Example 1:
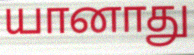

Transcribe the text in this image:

யானாது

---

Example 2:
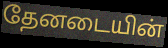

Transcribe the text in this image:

தேனடையின்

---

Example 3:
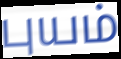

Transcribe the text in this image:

புயம்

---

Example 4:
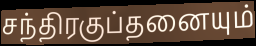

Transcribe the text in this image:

சந்திரகுப்தனையும்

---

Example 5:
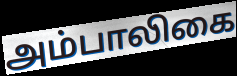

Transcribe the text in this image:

அம்பாலிகை